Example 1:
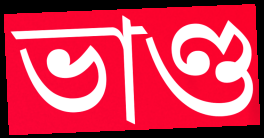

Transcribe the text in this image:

ভাণ্ড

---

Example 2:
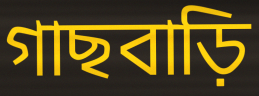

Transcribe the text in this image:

গাছবাড়ি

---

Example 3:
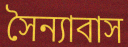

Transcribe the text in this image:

সৈন্যাবাস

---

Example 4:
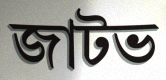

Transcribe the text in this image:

জাটভ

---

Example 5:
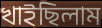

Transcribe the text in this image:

খাইছিলাম